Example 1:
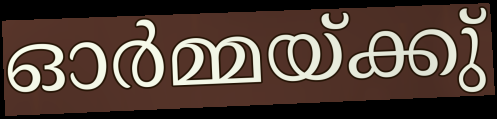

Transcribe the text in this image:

ഓർമ്മയ്ക്കു്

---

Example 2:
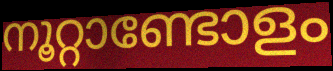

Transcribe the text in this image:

നൂറ്റാണ്ടോളം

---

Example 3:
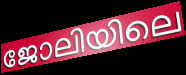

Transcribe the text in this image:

ജോലിയിലെ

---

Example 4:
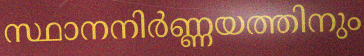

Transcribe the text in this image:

സ്ഥാനനിർണ്ണയത്തിനും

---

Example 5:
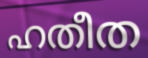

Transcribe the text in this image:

ഹതീത